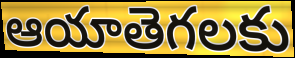
ఆయాతెగలకు